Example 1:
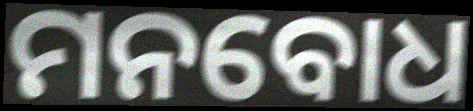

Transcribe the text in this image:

ମନବୋଧ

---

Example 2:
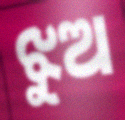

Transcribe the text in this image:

ଝୁଅ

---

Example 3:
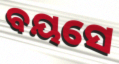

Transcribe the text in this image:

ବୟସେ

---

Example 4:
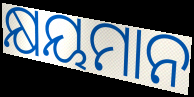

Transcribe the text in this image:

କ୍ଷୟମାନ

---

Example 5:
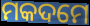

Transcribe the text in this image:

ମକଦମେ